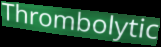
Thrombolytic